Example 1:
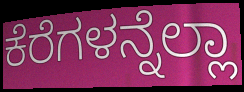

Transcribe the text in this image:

ಕೆರೆಗಳನ್ನೆಲ್ಲಾ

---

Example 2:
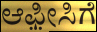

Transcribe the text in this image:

ಆಫ಼ೀಸಿಗೆ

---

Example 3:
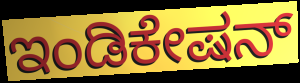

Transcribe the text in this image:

ಇಂಡಿಕೇಷನ್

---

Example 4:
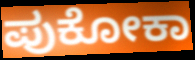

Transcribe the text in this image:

ಪುಕೋಕಾ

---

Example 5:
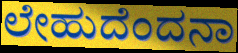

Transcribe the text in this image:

ಲೇಹುದೆಂದನಾ